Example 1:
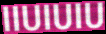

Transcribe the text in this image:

IIUIUIU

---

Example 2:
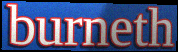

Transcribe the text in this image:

burneth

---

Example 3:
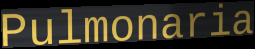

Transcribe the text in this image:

Pulmonaria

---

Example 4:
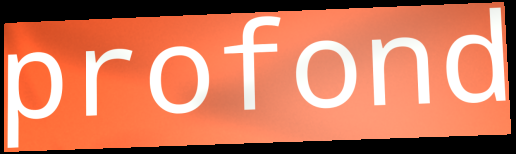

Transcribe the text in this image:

profond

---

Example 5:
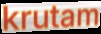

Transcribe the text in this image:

krutam